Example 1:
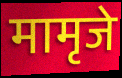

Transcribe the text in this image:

मामृजे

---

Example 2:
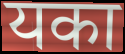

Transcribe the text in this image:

यका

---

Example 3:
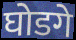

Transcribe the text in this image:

घोडगे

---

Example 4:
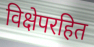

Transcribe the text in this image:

विक्षेपरहित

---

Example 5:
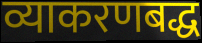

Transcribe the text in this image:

व्याकरणबद्ध